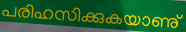
പരിഹസിക്കുകയാണു്